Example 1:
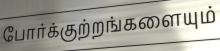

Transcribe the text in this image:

போர்க்குற்றங்களையும்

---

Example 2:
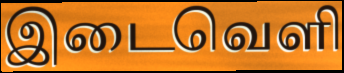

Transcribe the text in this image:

இடைவெளி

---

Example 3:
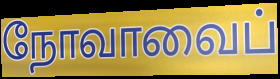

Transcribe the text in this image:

நோவாவைப்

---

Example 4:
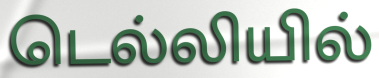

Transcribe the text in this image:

டெல்லியில்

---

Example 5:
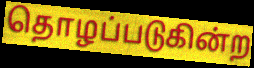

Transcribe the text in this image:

தொழப்படுகின்ற